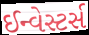
ઈન્વેસ્ટર્સ